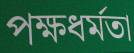
পক্ষধর্মতা